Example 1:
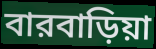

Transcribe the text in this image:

বারবাড়িয়া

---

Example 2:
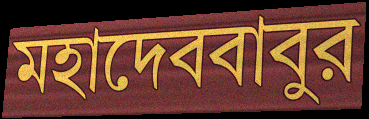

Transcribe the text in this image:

মহাদেববাবুর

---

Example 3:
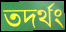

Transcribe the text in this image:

তদর্থং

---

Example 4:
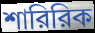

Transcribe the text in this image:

শারিরিক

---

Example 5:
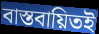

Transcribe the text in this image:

বাস্তবায়িতই